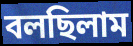
বলছিলাম